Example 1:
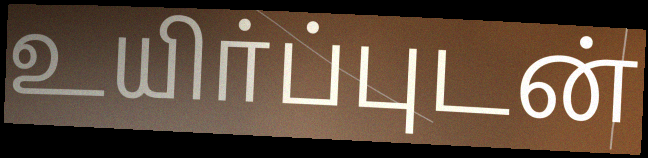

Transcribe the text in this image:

உயிர்ப்புடன்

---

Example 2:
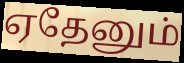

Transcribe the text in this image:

ஏதேனும்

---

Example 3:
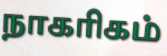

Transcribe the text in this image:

நாகரிகம்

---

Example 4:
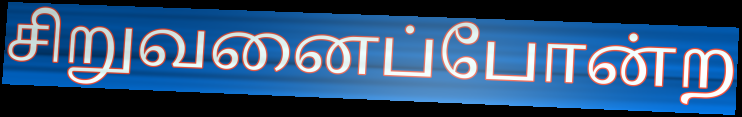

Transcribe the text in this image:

சிறுவனைப்போன்ற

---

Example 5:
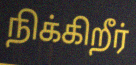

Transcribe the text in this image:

நிக்கிறீர்